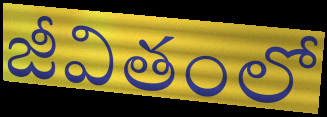
జీవితంలో